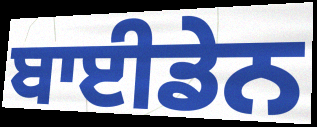
ਬਾਈਡੇਨ